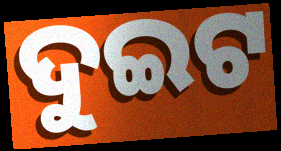
ଦୁଇଟ